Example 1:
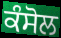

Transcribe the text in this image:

ਕੰਸੋਲ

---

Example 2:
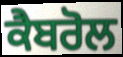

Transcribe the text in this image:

ਕੈਬਰੋਲ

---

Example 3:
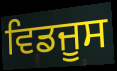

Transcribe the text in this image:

ਵਿਡਜੂਸ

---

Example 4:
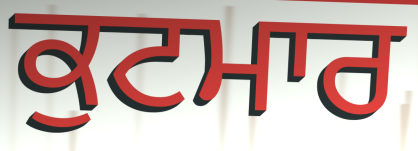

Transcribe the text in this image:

ਕੁਟਮਾਰ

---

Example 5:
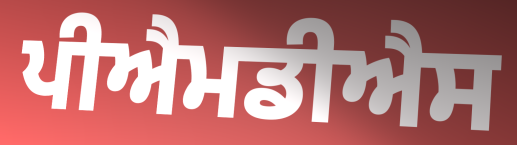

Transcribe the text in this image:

ਪੀਐਮਡੀਐਸ